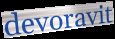
devoravit